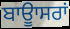
ਬਾਊਾਸਰਾਂ